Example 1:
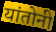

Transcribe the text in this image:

यांतोनी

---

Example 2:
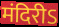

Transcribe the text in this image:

मंदिरीऽ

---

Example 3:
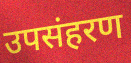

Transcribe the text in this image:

उपसंहरण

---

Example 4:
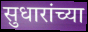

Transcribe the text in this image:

सुधारांच्या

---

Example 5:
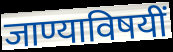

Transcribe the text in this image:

जाण्याविषयीं